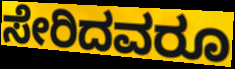
ಸೇರಿದವರೂ